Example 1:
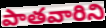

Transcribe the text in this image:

పాతవారిని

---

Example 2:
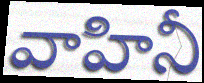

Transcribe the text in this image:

వాహినీ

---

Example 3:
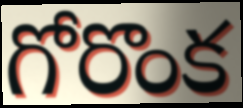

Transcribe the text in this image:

గోరొంక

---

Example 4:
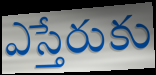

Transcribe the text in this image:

ఎస్తేరుకు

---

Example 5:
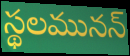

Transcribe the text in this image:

స్థలమునన్